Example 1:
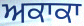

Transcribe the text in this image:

ਅਕਾਕਾ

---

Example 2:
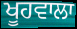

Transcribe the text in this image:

ਖੂਹਵਾਲਾ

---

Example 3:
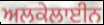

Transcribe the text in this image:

ਅਲਕੇਲਾਈਨ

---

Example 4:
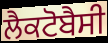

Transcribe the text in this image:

ਲੈਕਟੋਬੈਸੀ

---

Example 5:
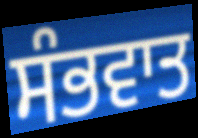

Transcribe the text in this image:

ਸੰਭਵਾਤ